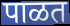
पाळत